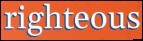
righteous